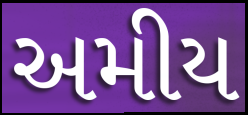
અમીય